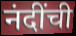
नंदींची